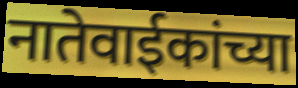
नातेवाईकांच्या